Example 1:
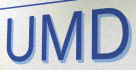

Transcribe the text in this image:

UMD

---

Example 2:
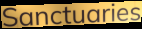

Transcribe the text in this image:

Sanctuaries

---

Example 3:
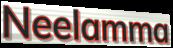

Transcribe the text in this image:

Neelamma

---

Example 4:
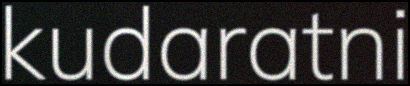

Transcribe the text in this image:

kudaratni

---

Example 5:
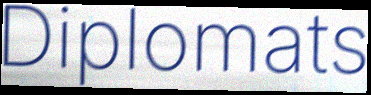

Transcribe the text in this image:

Diplomats